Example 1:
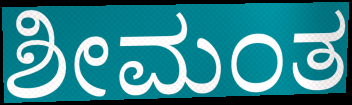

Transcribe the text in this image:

ಶೀಮಂತ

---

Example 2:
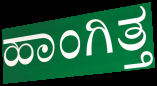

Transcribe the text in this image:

ಹಾಂಗಿತ್ತ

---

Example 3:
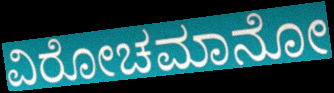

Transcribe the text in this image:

ವಿರೋಚಮಾನೋ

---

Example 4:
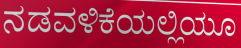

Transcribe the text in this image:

ನಡವಳಿಕೆಯಲ್ಲಿಯೂ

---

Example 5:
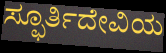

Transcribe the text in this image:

ಸ್ಫೂರ್ತಿದೇವಿಯ